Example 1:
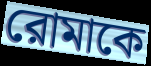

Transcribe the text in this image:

রোমাকে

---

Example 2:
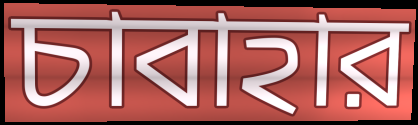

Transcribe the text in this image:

চাবাহার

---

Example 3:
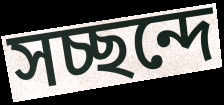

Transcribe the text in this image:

সচ্ছন্দে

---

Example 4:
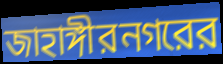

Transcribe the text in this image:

জাহাঙ্গীরনগরের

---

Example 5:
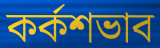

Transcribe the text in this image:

কর্কশভাব